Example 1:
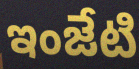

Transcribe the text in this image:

ఇంజేటి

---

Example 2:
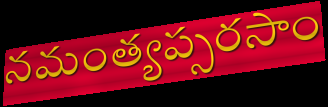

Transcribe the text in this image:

నమంత్యప్సరసాం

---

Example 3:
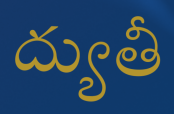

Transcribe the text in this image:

ద్యుతీ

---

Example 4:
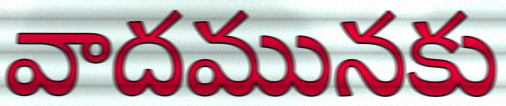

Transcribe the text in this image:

వాదమునకు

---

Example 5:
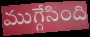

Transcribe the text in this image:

ముగ్గేసింది